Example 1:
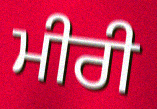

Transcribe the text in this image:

ਮੀਰੀ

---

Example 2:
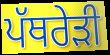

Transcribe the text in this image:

ਪੱਥਰੇੜੀ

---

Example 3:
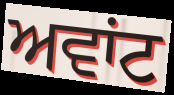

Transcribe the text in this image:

ਅਵਾਂਟ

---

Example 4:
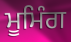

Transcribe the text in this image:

ਮੂਮਿੰਗ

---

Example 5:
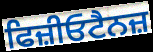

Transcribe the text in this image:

ਫਿਜ਼ੀਓਟੈਨਜ਼